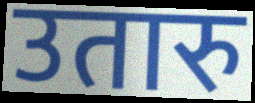
उतारु